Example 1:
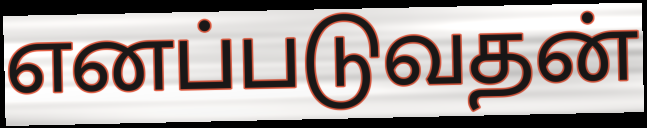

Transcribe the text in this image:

எனப்படுவதன்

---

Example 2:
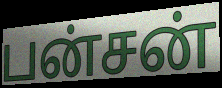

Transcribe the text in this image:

பன்சன்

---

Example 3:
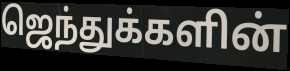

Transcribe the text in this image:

ஜெந்துக்களின்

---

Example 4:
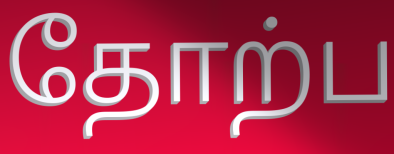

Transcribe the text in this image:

தோற்ப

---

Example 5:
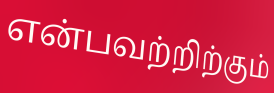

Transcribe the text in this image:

என்பவற்றிற்கும்